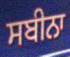
ਸਬੀਨਾ